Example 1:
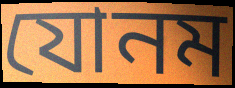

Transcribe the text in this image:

যোনম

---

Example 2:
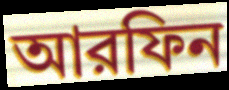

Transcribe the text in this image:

আরফিন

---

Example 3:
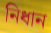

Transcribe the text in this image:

নিধান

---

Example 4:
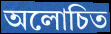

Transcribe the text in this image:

অলোচিত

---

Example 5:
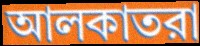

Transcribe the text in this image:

আলকাতরা